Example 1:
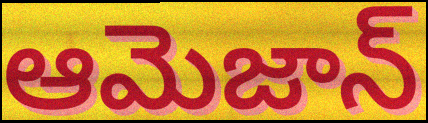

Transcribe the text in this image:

ఆమెజాన్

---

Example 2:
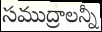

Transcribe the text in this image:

సముద్రాలన్నీ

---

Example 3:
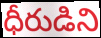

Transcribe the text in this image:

ధీరుడిని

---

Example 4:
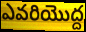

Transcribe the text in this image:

ఎవరియొద్ద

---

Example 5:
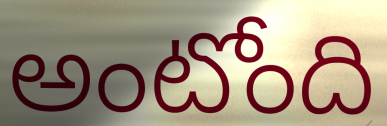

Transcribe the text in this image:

అంటోంది